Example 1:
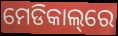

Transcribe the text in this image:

ମେଡିକାଲ୍‌ରେ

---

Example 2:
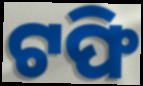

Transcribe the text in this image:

ଟଫି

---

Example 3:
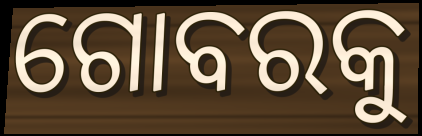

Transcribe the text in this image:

ଗୋବରକୁ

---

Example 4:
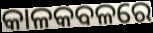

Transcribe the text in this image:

କାଳକବଳରେ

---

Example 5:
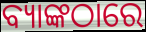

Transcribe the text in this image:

ବ୍ୟାଙ୍କଠାରେ